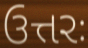
ઉત્તરઃ